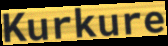
Kurkure